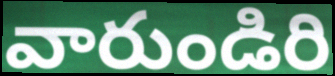
వారుండిరి